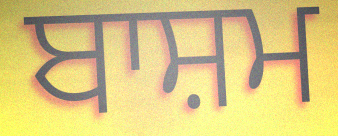
ਬਾਸ਼ਮ